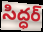
సిద్ధర్